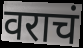
वराचं